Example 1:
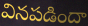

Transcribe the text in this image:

వినపడిందా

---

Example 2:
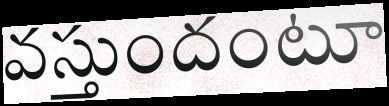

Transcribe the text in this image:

వస్తుందంటూ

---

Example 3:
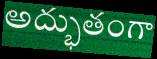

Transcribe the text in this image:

అద్భుతంగా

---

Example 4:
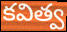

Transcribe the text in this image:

కవిత్వ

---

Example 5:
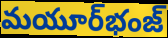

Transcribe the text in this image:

మయూర్‌భంజ్